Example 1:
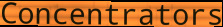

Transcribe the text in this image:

Concentrators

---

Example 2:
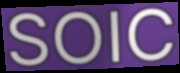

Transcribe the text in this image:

SOIC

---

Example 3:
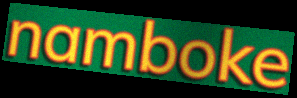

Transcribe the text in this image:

namboke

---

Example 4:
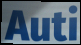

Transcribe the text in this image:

Auti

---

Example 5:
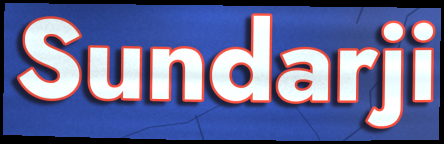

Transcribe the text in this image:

Sundarji